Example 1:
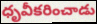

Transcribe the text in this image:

ధృవీకరించాడు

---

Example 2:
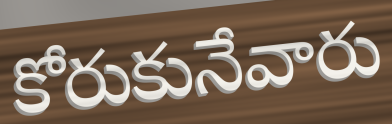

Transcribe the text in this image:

కోరుకునేవారు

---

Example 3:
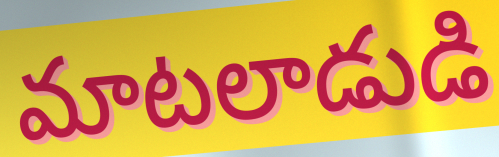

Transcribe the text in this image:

మాటలాడుడి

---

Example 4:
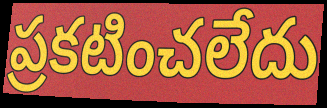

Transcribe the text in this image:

ప్రకటించలేదు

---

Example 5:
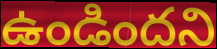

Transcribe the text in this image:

ఉండిందని